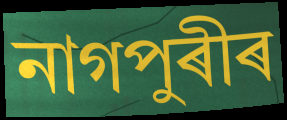
নাগপুৰীৰ